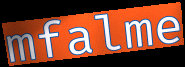
mfalme